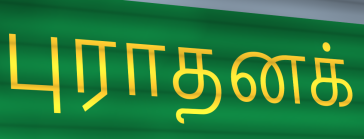
புராதனக்